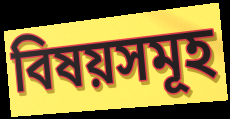
বিষয়সমূহ